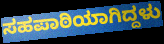
ಸಹಪಾಠಿಯಾಗಿದ್ದಳು